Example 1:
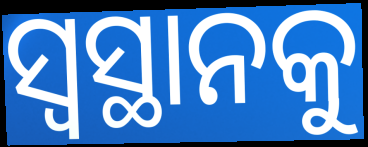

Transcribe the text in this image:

ସ୍ୱସ୍ଥାନକୁ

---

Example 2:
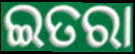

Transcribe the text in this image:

ଇତରା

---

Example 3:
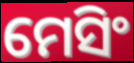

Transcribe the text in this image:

ମେସିଂ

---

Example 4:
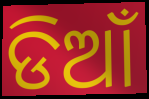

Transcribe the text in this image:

ଡିଆଁ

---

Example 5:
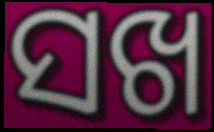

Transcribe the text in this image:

ସଖ